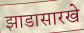
झाडासारखे